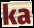
ka